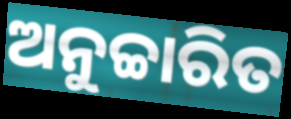
ଅନୁଚ୍ଚାରିତ